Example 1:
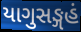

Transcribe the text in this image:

યાગુસઙ્ગહં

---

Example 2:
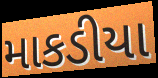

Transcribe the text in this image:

માકડીયા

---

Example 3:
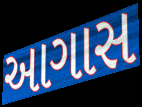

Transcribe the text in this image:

આગાસ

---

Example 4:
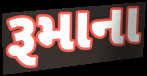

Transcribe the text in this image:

રૂમાના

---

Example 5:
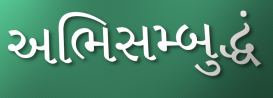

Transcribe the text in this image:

અભિસમ્બુદ્ધં